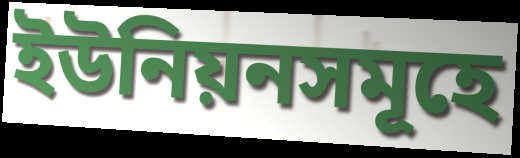
ইউনিয়নসমূহে